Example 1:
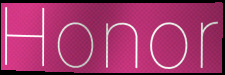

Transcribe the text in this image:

Honor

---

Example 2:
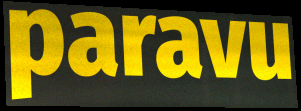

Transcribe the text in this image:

paravu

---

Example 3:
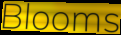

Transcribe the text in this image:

Blooms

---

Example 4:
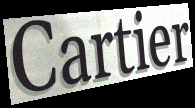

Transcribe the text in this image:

Cartier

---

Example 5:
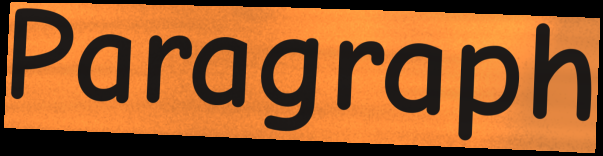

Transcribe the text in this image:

Paragraph